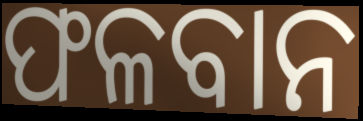
ଫଳବାନ